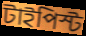
টাইপিস্ট